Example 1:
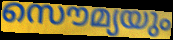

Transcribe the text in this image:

സൌമ്യയും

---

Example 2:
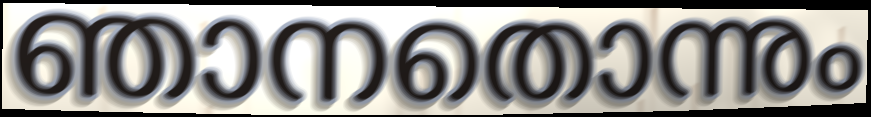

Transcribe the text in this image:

ഞാനതൊന്നും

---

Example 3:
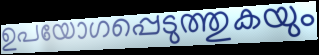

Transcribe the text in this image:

ഉപയോഗപ്പെടുത്തുകയും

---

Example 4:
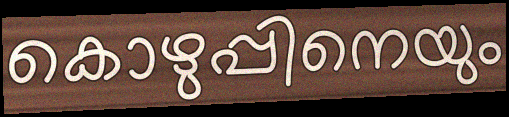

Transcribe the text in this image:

കൊഴുപ്പിനെയും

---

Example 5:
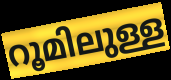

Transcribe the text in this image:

റൂമിലുള്ള